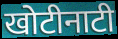
खोटीनाटी